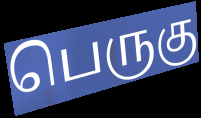
பெருகு